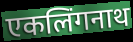
एकलिंगनाथ